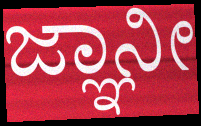
ಜ್ಞಾನೀ